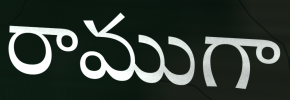
రాముగా